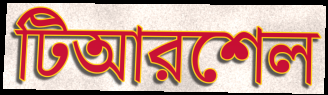
টিআরশেল